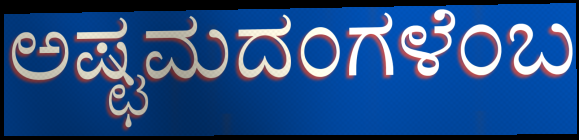
ಅಷ್ಟಮದಂಗಳೆಂಬ